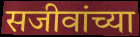
सजीवांच्या